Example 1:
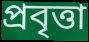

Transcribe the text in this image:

প্রবৃত্তা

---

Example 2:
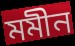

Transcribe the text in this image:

মমীন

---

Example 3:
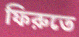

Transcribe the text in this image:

ফিরুতে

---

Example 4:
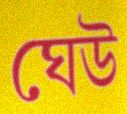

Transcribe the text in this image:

ঘেউ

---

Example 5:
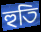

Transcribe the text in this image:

হুতি